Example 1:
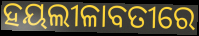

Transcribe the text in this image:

ହୟଲୀଳାବତୀରେ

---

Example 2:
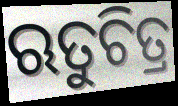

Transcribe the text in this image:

ଋତୁଚିତ୍ର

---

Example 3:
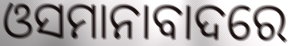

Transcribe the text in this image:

ଓସମାନାବାଦରେ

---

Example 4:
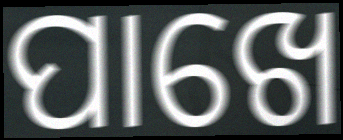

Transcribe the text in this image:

ପାଖେ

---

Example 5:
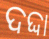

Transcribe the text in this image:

ଦଦ୍ଦା